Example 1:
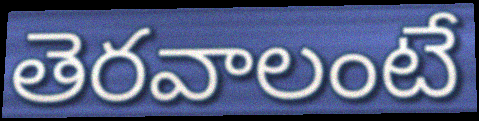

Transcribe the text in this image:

తెరవాలంటే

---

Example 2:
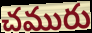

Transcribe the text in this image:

చమురు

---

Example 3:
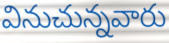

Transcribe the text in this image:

వినుచున్నవారు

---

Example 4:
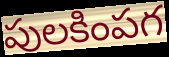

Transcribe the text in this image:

పులకింపగ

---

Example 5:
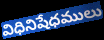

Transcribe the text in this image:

విధినిషేధములు